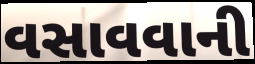
વસાવવાની